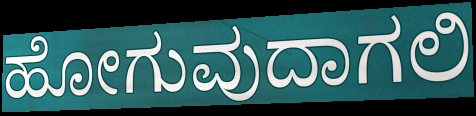
ಹೋಗುವುದಾಗಲಿ